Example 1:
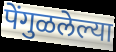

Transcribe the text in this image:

पेंगुळलेल्या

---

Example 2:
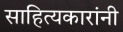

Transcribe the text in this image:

साहित्यकारांनी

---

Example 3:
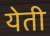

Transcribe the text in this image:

येती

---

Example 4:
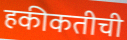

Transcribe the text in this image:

हकीकतीची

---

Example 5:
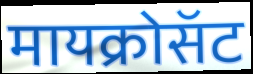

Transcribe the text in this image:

मायक्रोसॅट